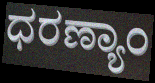
ಧರಣ್ಯಾಂ